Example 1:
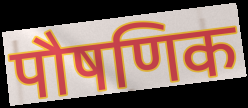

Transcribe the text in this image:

पौषणिक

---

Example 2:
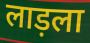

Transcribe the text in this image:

लाड़ला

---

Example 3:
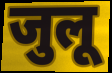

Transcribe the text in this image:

जुलू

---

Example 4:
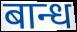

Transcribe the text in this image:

बान्ध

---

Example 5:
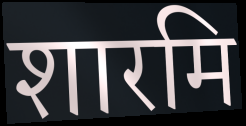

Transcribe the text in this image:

शारमि